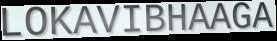
LOKAVIBHAAGA